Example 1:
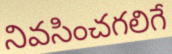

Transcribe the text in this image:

నివసించగలిగే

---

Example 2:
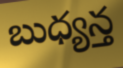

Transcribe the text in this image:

బుధ్యన్త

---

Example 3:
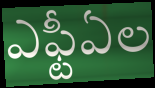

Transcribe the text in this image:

ఎఫ్టీఏల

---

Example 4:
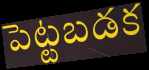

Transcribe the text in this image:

పెట్టబడక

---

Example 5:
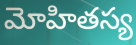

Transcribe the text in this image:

మోహితస్య